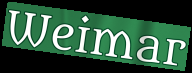
Weimar